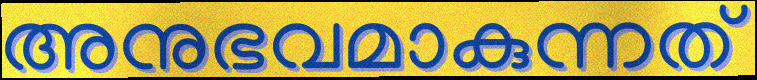
അനുഭവമാകുന്നത്